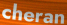
cheran